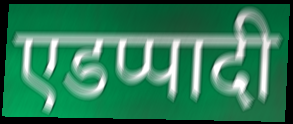
एडप्पादी